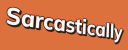
Sarcastically